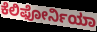
ಕೆಲಿಫೋರ್ನಿಯಾ